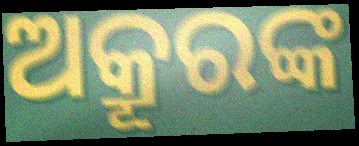
ଅକ୍ରୂରଙ୍କ